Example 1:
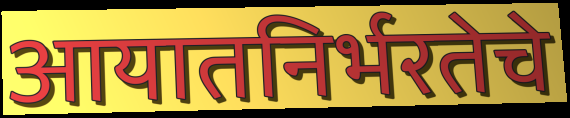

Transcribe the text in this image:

आयातनिर्भरतेचे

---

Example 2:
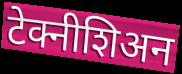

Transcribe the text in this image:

टेक्नीशिअन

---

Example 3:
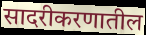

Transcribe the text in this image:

सादरीकरणातील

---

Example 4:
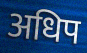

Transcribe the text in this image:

अधिप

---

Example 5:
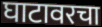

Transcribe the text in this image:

घाटावरचा